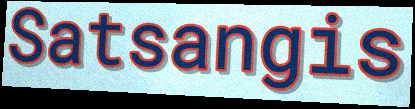
Satsangis